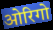
ओरिगो